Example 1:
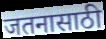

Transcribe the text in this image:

जतनासाठी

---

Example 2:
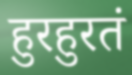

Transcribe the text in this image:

हुरहुरतं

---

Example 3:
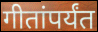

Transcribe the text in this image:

गीतांपर्यंत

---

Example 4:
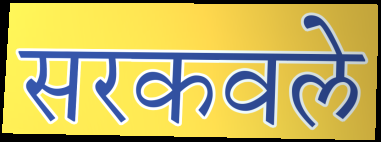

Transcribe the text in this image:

सरकवले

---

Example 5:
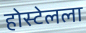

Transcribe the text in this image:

होस्टेलला